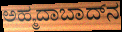
ಅಹ್ಮದಾಬಾದ್‌ನ